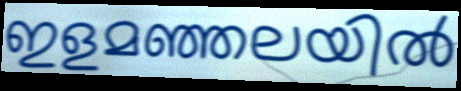
ഇളമഞ്ഞലയിൽ